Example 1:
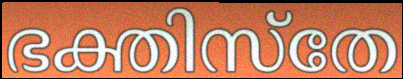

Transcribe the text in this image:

ഭക്തിസ്തേ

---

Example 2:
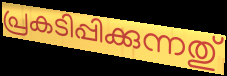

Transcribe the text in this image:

പ്രകടിപ്പിക്കുന്നതു്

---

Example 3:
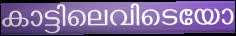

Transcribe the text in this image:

കാട്ടിലെവിടെയോ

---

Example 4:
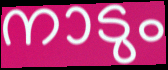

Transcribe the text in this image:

നാടും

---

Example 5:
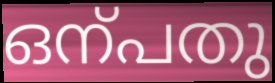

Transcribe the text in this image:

ഒന്പതു